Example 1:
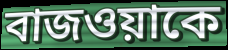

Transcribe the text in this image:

বাজওয়াকে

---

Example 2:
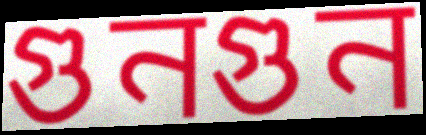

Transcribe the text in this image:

গুনগুন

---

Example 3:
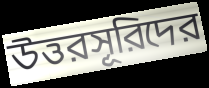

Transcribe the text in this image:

উত্তরসূরিদের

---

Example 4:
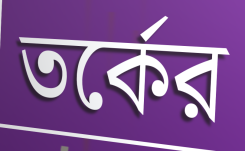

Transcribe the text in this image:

তর্কের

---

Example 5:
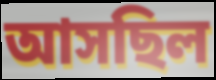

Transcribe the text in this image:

আসছিল